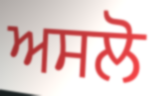
ਅਸਲੋ